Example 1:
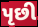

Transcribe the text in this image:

પૃછી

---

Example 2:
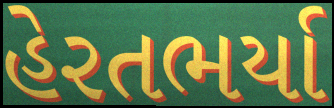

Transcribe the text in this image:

હેરતભર્યા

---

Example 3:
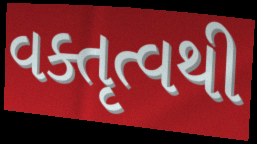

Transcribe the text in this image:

વક્તૃત્વથી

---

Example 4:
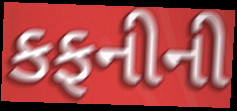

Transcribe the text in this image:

કફનીની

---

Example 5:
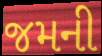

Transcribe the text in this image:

જમની